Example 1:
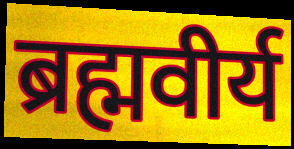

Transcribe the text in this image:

ब्रह्मवीर्य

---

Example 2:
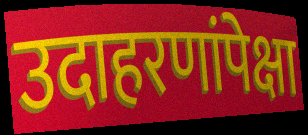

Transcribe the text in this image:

उदाहरणांपेक्षा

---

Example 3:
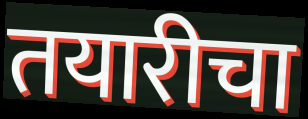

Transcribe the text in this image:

तयारीचा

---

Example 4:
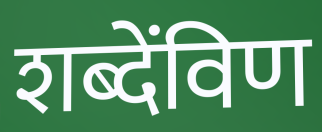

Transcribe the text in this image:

शब्देंविण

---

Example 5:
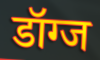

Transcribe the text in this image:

डॉग्ज